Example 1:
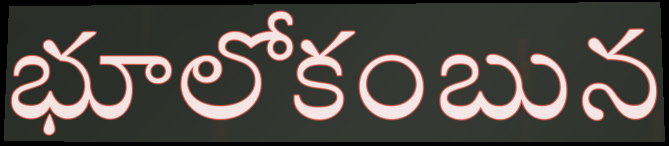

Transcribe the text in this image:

భూలోకంబున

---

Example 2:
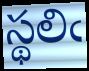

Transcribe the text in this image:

స్థలిఁ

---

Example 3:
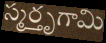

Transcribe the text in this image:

స్మర్తృగామి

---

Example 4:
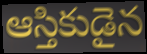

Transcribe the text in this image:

ఆస్తికుడైన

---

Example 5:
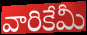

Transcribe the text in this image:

వారికేమీ